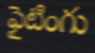
ఫైటింగు